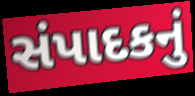
સંપાદકનું